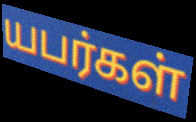
யபர்கள்